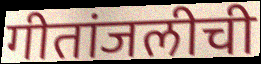
गीतांजलीची